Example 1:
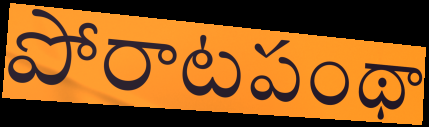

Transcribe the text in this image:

పోరాటపంథా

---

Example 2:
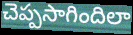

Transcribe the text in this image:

చెప్పసాగిందిలా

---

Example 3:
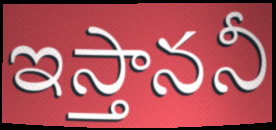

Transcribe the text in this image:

ఇస్తాననీ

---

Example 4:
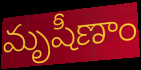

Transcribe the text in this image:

మృషీణాం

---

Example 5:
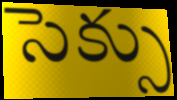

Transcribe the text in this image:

సెక్సు